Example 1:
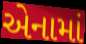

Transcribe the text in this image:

એનામાં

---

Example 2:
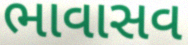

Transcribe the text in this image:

ભાવાસવ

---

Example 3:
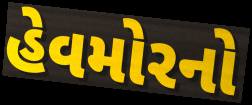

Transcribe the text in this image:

હેવમોરનો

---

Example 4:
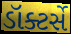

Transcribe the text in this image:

ડૉક્ટર્સે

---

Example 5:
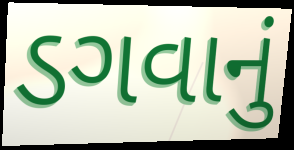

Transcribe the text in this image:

ડગવાનું